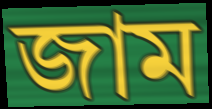
জাম